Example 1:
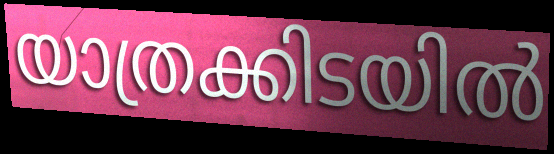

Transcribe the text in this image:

യാത്രക്കിടയിൽ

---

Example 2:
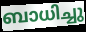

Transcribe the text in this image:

ബാധിച്ചു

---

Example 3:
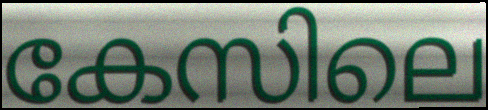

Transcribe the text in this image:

കേസിലെ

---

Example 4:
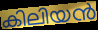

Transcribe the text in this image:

കിലിയൻ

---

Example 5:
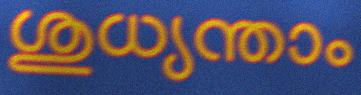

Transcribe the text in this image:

ശുധ്യന്താം